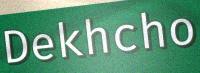
Dekhcho